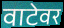
वाटेवर